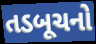
તડબૂચનો